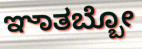
ಞಾತಬ್ಬೋ